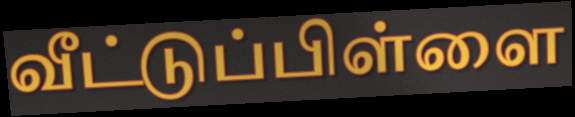
வீட்டுப்பிள்ளை